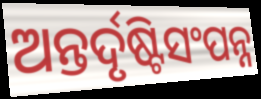
ଅନ୍ତର୍ଦୃଷ୍ଟିସଂପନ୍ନ